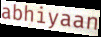
abhiyaan